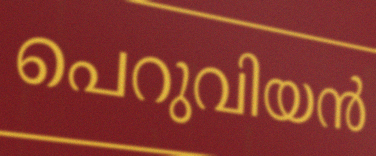
പെറുവിയൻ